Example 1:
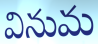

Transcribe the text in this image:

వినుమ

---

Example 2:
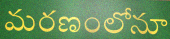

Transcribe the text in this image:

మరణంలోనూ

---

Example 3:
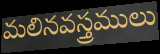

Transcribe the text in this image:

మలినవస్త్రములు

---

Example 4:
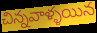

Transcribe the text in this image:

చిన్నవాళ్ళయిన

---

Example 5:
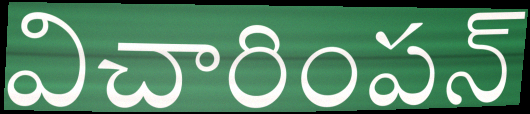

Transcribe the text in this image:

విచారింపన్